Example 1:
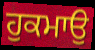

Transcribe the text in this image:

ਹੁਕਮਾਉ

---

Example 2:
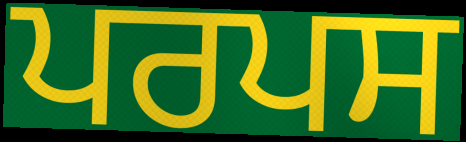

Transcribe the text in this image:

ਪਰਪਸ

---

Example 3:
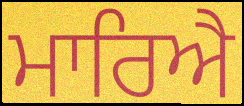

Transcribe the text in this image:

ਮਾਰਿਐ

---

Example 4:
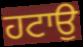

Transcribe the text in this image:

ਹਟਾਉ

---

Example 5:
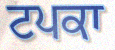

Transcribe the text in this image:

ਟਪਕਾ